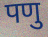
पणु